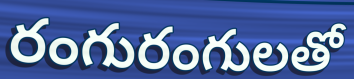
రంగురంగులతో